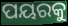
ପୟରକୁ